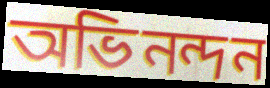
অভিনন্দন